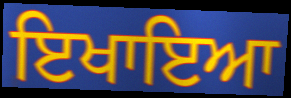
ਇਖਾਇਆ